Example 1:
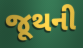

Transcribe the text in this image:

જૂથની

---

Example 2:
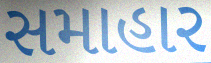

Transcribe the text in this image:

સમાહાર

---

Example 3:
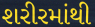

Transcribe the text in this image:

શરીરમાંથી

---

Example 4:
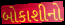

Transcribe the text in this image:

બોકાશીનો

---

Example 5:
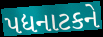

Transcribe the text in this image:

પદ્યનાટકને